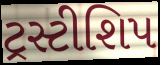
ટ્રસ્ટીશિપ